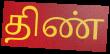
திண்